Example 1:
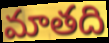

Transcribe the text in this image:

మాతది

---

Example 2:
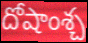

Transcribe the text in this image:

దోషాంశ్చ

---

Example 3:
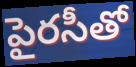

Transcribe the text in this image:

పైరసీతో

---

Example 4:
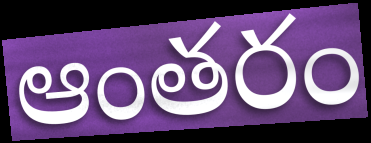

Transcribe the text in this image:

ఆంతరం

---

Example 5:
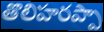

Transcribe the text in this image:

తొలిహరప్పా